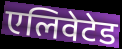
एलिवेटेड